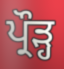
ਪ੍ਰੌੜ੍ਹ